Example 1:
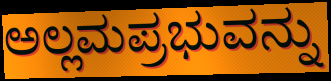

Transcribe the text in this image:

ಅಲ್ಲಮಪ್ರಭುವನ್ನು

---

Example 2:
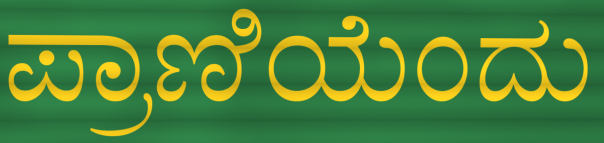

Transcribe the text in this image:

ಪ್ರಾಣಿಯೆಂದು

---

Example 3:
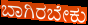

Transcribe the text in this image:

ಬಾಗಿರಬೇಕು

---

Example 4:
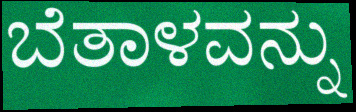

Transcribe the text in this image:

ಬೆತಾಳವನ್ನು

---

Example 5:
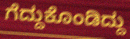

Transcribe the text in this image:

ಗೆದ್ದುಕೊಂಡಿದ್ದು